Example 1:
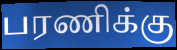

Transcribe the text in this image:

பரணிக்கு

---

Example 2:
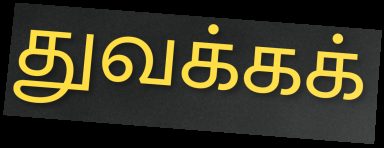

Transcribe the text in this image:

துவக்கக்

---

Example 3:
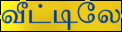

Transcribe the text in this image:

வீட்டிலே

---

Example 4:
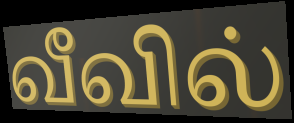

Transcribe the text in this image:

வீவில்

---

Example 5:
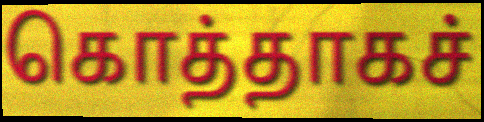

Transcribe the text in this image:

கொத்தாகச்